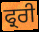
ਫ੍ਰਰੀ